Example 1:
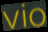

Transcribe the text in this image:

vio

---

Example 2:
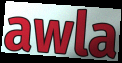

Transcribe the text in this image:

awla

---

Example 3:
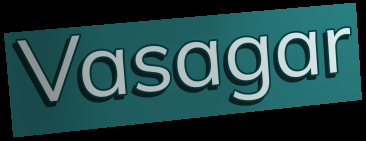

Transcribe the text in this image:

Vasagar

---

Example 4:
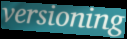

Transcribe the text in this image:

versioning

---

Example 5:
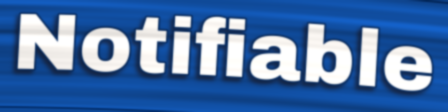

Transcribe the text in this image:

Notifiable